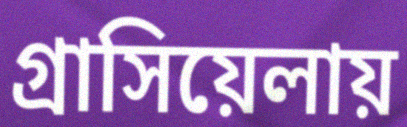
গ্রাসিয়েলায়